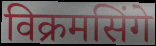
विक्रमसिंगे